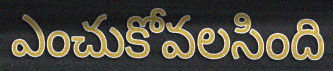
ఎంచుకోవలసింది